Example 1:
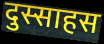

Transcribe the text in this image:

दुस्साहस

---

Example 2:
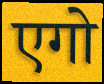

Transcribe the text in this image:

एगो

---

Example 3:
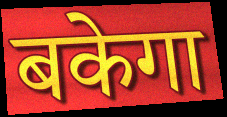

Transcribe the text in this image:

बकेगा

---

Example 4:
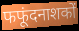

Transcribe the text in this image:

फफूंदनाशकों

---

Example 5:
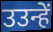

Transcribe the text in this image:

उउन्हें